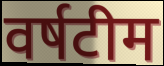
वर्षटीम